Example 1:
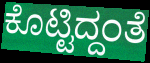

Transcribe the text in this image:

ಕೊಟ್ಟಿದ್ದಂತೆ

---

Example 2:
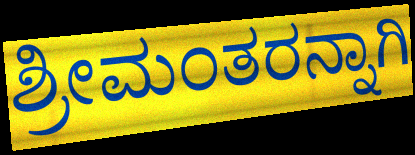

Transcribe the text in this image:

ಶ್ರೀಮಂತರನ್ನಾಗಿ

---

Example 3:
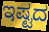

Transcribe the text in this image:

ಇಷ್ಟದ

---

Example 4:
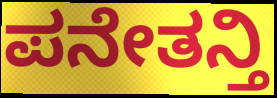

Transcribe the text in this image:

ಪನೇತನ್ತಿ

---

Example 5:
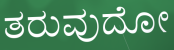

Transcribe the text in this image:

ತರುವುದೋ